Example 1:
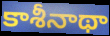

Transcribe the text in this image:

కాశీనాథా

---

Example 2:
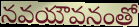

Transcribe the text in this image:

నవయౌవనంతో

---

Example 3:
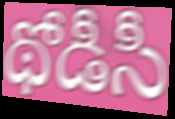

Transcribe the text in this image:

థోడీసీ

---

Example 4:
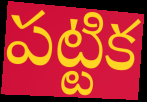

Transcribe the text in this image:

పట్టిక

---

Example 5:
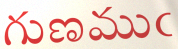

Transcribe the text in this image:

గుణముఁ